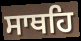
ਸਾਥਹਿ